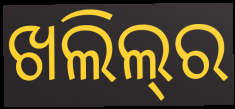
ଖଲିଲ୍‍ର